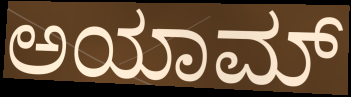
ಅಯಾಮ್